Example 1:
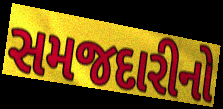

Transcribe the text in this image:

સમજદારીનો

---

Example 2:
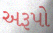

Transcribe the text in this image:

અરૂપો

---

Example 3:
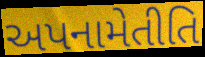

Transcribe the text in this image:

અપનામેતીતિ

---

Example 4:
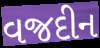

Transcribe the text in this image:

વજ્રદીન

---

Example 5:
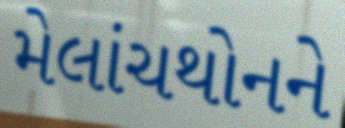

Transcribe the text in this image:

મેલાંચથોનને